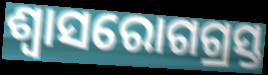
ଶ୍ୱାସରୋଗଗ୍ରସ୍ତ